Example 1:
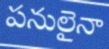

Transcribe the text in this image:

పనులైనా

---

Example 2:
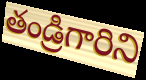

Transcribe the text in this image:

తండ్రిగారిని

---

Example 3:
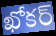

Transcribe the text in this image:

ఖోకర్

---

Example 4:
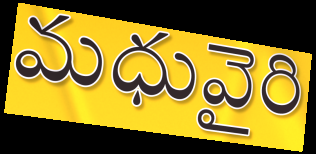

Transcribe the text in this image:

మధువైరి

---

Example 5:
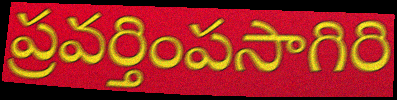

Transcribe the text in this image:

ప్రవర్తింపసాగిరి